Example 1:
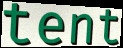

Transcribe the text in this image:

tent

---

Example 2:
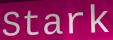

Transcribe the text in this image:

Stark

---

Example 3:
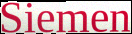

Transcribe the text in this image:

Siemen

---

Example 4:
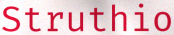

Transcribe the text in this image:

Struthio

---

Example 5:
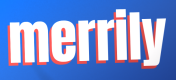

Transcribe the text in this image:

merrily